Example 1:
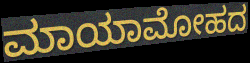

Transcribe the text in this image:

ಮಾಯಾಮೋಹದ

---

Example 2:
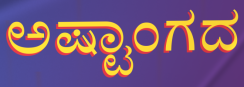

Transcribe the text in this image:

ಅಷ್ಟಾಂಗದ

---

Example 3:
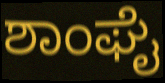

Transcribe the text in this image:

ಶಾಂಘೈ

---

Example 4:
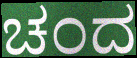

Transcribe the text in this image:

ಚಂದ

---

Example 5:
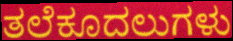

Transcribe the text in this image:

ತಲೆಕೂದಲುಗಳು